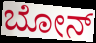
ಬೋನ್